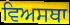
ਵਿਅਸਥਾ